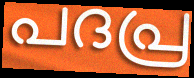
പദപ്ര